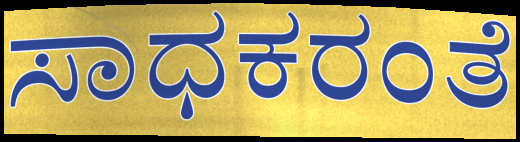
ಸಾಧಕರಂತೆ